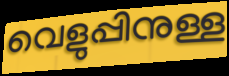
വെളുപ്പിനുള്ള